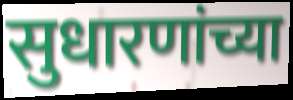
सुधारणांच्या